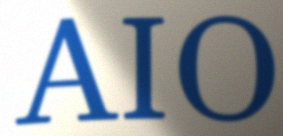
AIO